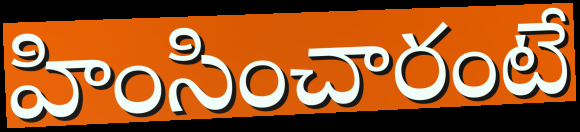
హింసించారంటే